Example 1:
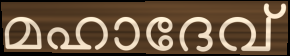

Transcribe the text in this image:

മഹാദേവ്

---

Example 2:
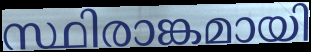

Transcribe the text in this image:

സ്ഥിരാങ്കമായി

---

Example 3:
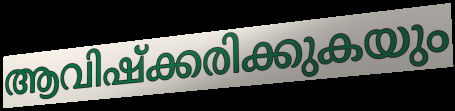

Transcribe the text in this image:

ആവിഷ്ക്കരിക്കുകയും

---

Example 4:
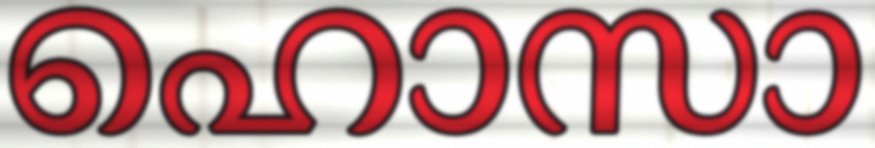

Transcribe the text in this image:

ഹൊസാ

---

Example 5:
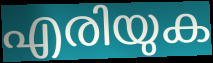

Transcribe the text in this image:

എരിയുക